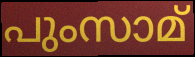
പുംസാമ്